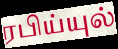
ரபிய்யுல்